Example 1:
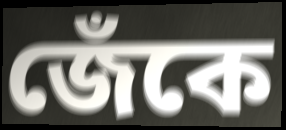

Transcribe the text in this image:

জেঁকে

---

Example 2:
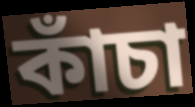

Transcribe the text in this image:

কাঁচা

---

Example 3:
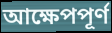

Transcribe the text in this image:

আক্ষেপপূর্ণ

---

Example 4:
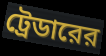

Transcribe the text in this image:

ট্রেডারের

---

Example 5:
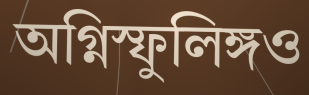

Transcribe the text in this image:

অগ্নিস্ফুলিঙ্গও